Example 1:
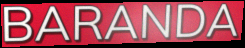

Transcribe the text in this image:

BARANDA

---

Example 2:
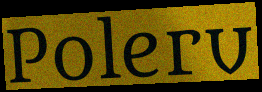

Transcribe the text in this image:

Poleru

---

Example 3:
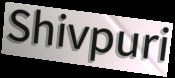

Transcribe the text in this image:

Shivpuri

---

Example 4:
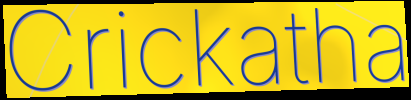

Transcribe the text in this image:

Crickatha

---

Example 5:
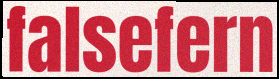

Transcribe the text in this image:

falsefern